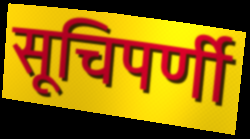
सूचिपर्णी